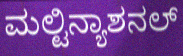
ಮಲ್ಟಿನ್ಯಾಶನಲ್